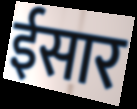
ईसार